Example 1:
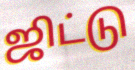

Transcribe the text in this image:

ஜிட்டு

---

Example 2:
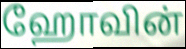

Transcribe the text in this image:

ஹோவின்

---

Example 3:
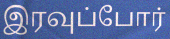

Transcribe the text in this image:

இரவுப்போர்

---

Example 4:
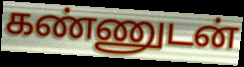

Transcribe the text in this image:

கண்ணுடன்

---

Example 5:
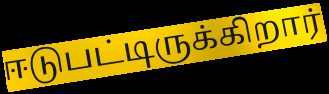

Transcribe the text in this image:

ஈடுபட்டிருக்கிறார்